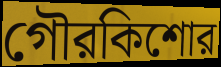
গৌরকিশোর